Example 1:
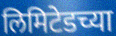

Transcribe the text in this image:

लिमिटेडच्या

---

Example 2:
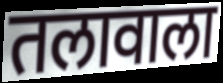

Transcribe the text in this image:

तलावाला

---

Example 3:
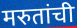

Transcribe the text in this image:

मरुतांची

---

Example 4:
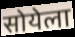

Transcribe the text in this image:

सोयेला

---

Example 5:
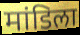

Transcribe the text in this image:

मांडिला